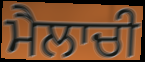
ਮੈਲਾਚੀ